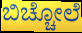
ಬಿಚ್ಚೋಲೆ